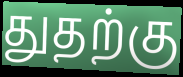
துதற்கு